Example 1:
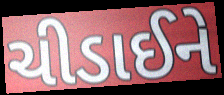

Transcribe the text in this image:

ચીડાઈને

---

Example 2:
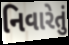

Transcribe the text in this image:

નિવારેતું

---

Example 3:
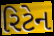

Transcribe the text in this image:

રિટેન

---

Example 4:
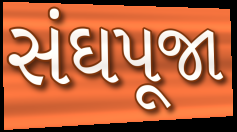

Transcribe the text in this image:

સંઘપૂજા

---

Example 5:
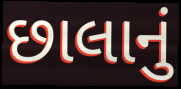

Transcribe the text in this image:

છાલાનું